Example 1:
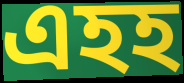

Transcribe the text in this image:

এহহ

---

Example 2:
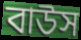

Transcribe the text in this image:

বাউস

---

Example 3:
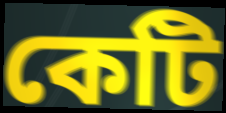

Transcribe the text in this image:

কেটি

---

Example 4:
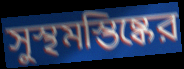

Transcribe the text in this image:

সুস্থমস্তিষ্কের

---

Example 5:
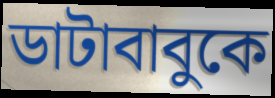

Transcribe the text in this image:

ডাটাবাবুকে